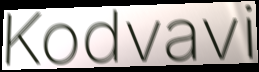
Kodvavi